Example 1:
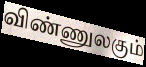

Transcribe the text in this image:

விண்ணுலகும்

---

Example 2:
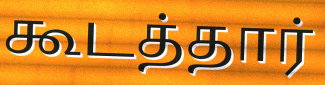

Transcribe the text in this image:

கூடத்தார்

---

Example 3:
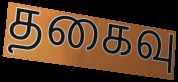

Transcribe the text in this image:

தகைவு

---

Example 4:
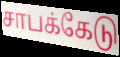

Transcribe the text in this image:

சாபக்கேடு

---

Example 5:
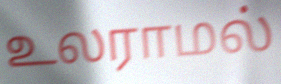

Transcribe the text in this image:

உலராமல்